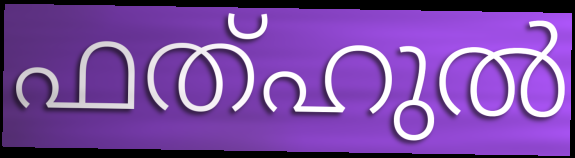
ഫത്ഹുൽ